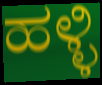
ಹಳ್ಳಿ